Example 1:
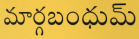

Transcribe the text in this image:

మార్గబంధుమ్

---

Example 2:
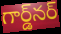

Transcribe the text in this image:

గార్డ్‌నర్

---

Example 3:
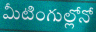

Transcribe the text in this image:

మీటింగుల్లోనో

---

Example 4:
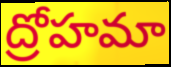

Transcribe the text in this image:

ద్రోహమా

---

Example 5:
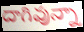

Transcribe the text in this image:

దాగివున్నా